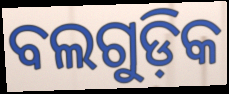
ବଲଗୁଡ଼ିକ